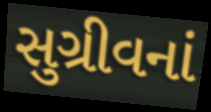
સુગ્રીવનાં